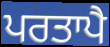
ਪਰਤਾਪੈ